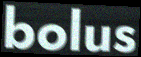
bolus